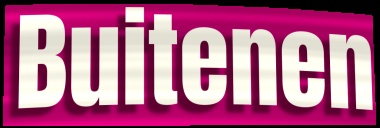
Buitenen